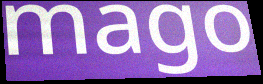
mago